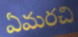
ఏమరచి